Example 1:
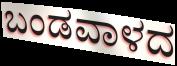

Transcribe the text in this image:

ಬಂಡವಾಳದ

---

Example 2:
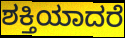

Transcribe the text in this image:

ಶಕ್ತಿಯಾದರೆ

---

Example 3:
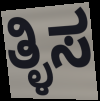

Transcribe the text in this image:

ತ್ಳಿಸ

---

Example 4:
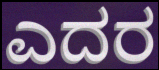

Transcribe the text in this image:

ಎದರ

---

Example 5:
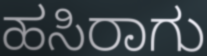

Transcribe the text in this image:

ಹಸಿರಾಗು